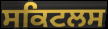
ਸਕਿਟਲਸ